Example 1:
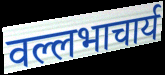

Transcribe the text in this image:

वल्लभाचार्य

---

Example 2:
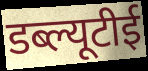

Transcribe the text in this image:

डब्ल्यूटीई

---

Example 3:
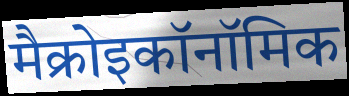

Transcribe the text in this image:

मैक्रोइकॉनॉमिक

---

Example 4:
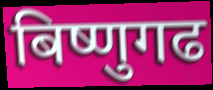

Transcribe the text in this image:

बिष्णुगढ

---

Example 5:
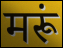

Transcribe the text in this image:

मरूं